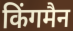
किंगमैन